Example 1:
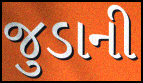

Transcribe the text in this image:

જુડાની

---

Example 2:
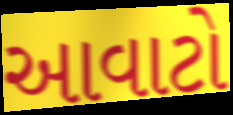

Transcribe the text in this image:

આવાટો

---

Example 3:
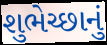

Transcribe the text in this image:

શુભેચ્છાનું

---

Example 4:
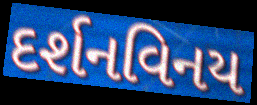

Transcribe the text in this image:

દર્શનવિનય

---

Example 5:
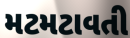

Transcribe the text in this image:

મટમટાવતી